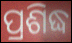
ପ୍ରଶିଦ୍ଧ